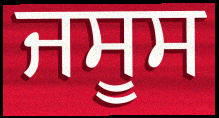
ਜਸੂਸ